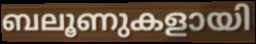
ബലൂണുകളായി